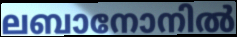
ലബാനോനിൽ